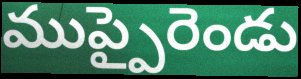
ముప్పైరెండు